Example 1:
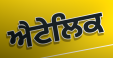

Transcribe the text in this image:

ਐਟੇਲਿਕ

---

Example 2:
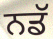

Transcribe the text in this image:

ਨਡੱ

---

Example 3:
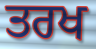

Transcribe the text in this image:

ਤਰਖ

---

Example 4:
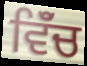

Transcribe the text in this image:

ਵਿੱੰਚ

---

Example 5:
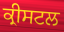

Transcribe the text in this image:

ਕ੍ਰੀਸਟਲ